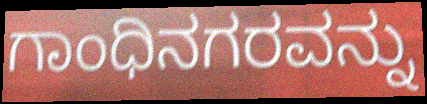
ಗಾಂಧಿನಗರವನ್ನು